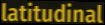
latitudinal